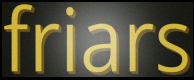
friars